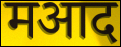
मआद